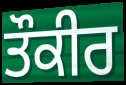
ਤੌਕੀਰ